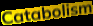
Catabolism